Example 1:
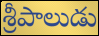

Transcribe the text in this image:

శ్రీపాలుడు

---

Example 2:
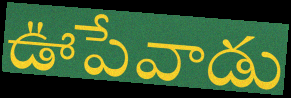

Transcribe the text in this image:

ఊపేవాడు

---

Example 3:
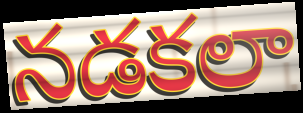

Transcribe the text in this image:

నడకలా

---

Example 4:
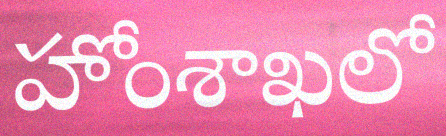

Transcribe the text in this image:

హోంశాఖలో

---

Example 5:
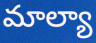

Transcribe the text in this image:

మాల్యా